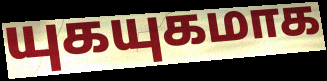
யுகயுகமாக